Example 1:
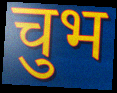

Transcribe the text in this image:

चुभ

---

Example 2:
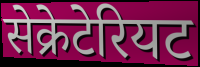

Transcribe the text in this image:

सेक्रेटेरियट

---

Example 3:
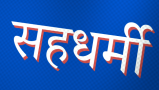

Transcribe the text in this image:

सहधर्मी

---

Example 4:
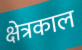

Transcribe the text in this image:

क्षेत्रकाल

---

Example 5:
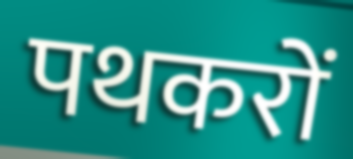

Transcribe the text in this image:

पथकरों